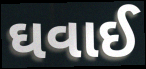
ઘવાઈ